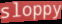
sloppy